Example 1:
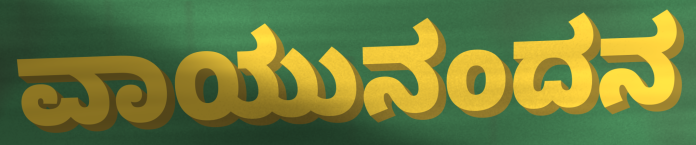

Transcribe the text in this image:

ವಾಯುನಂದನ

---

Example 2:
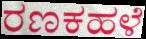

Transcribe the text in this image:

ರಣಕಹಳೆ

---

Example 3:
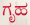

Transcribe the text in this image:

ಗೃಹ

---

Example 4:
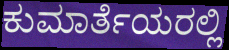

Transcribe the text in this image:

ಕುಮಾರ್ತೆಯರಲ್ಲಿ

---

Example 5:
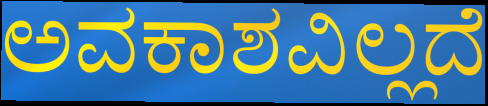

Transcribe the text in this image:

ಅವಕಾಶವಿಲ್ಲದೆ